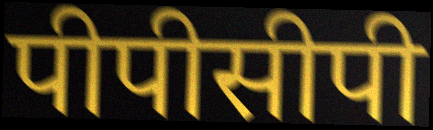
पीपीसीपी